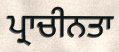
ਪ੍ਰਾਚੀਨਤਾ